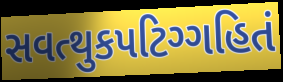
સવત્થુકપટિગ્ગહિતં